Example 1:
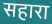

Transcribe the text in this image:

सहारा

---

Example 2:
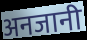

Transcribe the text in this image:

अनजानी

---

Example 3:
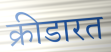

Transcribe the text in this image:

क्रीडारत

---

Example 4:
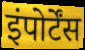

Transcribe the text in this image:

इंपोर्टेंस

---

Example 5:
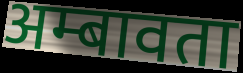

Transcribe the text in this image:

अम्बावता